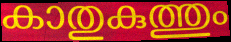
കാതുകുത്തും